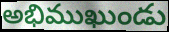
అభిముఖుండు